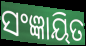
ସଂଜ୍ଞାୟିତ